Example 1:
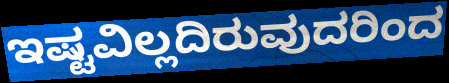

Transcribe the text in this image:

ಇಷ್ಟವಿಲ್ಲದಿರುವುದರಿಂದ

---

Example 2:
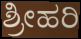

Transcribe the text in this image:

ಶ್ರೀಹರಿ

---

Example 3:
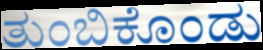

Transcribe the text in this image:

ತುಂಬಿಕೊಂಡು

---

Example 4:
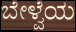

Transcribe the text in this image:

ಬೇಳ್ವೆಯ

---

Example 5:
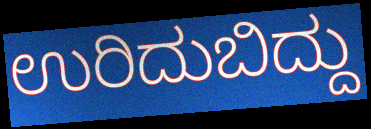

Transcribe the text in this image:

ಉರಿದುಬಿದ್ದು